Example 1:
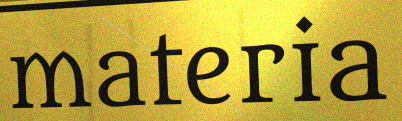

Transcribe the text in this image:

materia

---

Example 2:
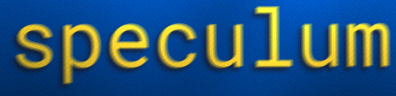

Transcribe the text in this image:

speculum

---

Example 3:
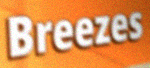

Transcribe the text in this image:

Breezes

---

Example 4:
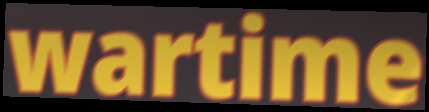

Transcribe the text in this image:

wartime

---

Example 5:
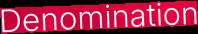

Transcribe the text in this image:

Denomination